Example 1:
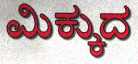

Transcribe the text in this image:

ಮಿಕ್ಕುದ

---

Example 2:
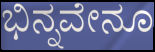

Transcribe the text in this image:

ಭಿನ್ನವೇನೂ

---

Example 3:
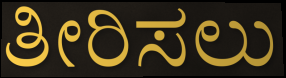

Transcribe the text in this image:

ತೀರಿಸಲು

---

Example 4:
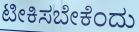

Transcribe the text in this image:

ಟೀಕಿಸಬೇಕೆಂದು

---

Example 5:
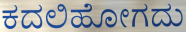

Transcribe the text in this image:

ಕದಲಿಹೋಗದು